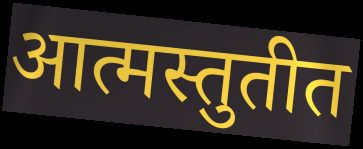
आत्मस्तुतीत